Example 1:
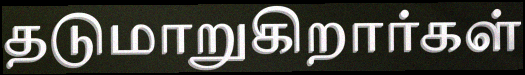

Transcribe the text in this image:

தடுமாறுகிறார்கள்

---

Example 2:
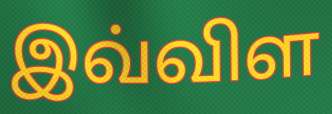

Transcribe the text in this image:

இவ்விள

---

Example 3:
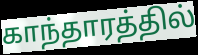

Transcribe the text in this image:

காந்தாரத்தில்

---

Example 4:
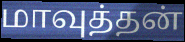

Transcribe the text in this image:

மாவுத்தன்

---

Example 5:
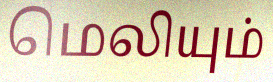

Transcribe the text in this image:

மெலியும்